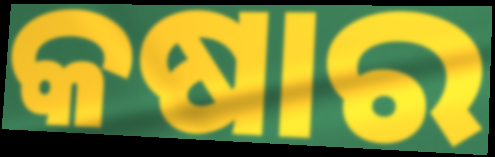
କଷାର